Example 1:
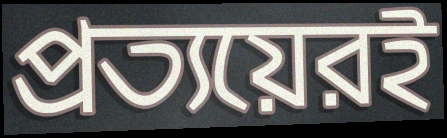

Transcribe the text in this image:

প্রত্যয়েরই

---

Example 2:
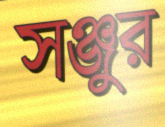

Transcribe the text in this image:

সঞ্জুর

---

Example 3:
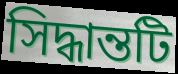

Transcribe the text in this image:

সিদ্ধান্তটি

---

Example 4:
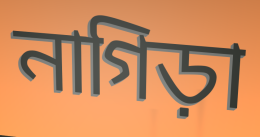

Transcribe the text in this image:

নাগিড়া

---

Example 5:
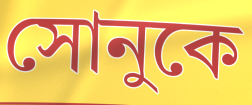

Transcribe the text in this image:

সোনুকে